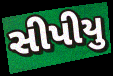
સીપીયુ